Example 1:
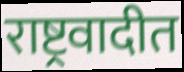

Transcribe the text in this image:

राष्ट्रवादीत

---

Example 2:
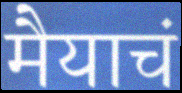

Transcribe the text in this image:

मैयाचं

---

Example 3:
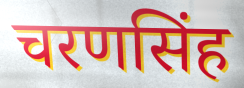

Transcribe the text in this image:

चरणसिंह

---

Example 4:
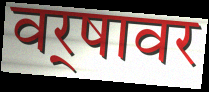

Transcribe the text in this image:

वर्षावर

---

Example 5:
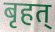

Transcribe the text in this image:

बृहत्